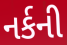
નર્કની